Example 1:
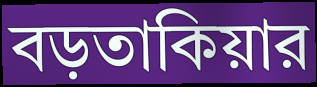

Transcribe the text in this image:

বড়তাকিয়ার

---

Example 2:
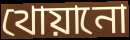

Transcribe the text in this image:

থোয়ানো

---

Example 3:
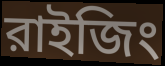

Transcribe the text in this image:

রাইজিং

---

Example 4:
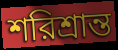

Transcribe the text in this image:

শরিশ্রান্ত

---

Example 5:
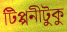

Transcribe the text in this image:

টিপ্পনীটুকু